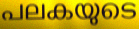
പലകയുടെ